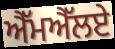
ਐੱਮਐੱਲਏ